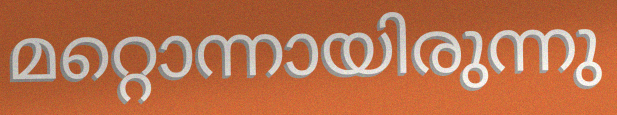
മറ്റൊന്നായിരുന്നു